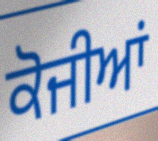
ਕੋਜੀਆਂ